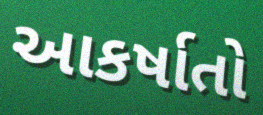
આકર્ષાતો